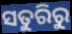
ସତୁରିରୁ